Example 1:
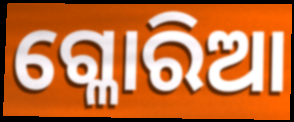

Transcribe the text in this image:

ଗ୍ଳୋରିଆ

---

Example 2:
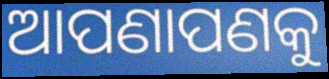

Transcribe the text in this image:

ଆପଣାପଣକୁ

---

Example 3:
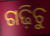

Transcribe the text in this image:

ଗଢ଼ିଚୁ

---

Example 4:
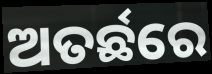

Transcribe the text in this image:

ଅତର୍ଛରେ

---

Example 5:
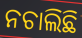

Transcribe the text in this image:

ନଚାଲିଛି